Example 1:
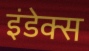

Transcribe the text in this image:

इंडेक्स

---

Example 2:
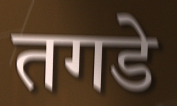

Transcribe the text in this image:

तगडे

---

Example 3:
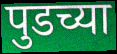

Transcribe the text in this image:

पुडच्या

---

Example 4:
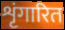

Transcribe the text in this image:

शृंगारित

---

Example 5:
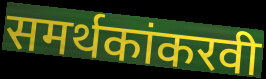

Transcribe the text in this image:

समर्थकांकरवी